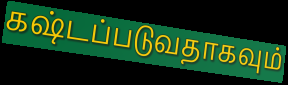
கஷ்டப்படுவதாகவும்